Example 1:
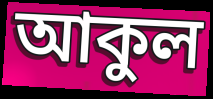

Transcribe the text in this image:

আকুল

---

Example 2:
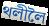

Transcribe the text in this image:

থলীলৈ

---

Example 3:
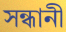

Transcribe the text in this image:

সন্ধানী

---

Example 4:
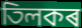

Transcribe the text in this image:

তিলকৰ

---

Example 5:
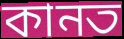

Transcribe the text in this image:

কানত